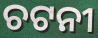
ଚଟନୀ